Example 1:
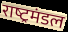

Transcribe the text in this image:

राष्ट्रमंडल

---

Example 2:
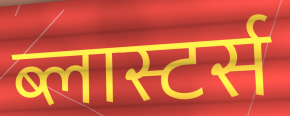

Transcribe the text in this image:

ब्लास्टर्स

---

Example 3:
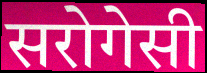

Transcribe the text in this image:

सरोगेसी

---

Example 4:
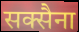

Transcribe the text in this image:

सक्सैना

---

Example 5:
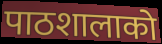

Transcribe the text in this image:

पाठशालाको